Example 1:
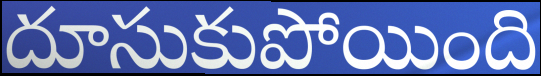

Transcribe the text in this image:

దూసుకుపోయింది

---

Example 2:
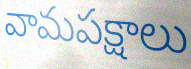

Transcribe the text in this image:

వామపక్షాలు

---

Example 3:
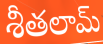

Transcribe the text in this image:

శీతలామ్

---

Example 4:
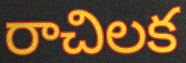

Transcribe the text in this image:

రాచిలక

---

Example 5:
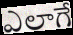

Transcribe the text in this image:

ఎలాగే